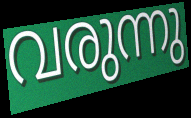
വരുന്നു